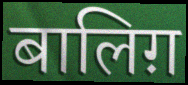
बालिग़